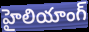
హైలియాంగ్